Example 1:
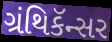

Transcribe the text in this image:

ગ્રંથિકૅન્સર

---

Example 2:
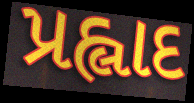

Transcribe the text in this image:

પ્રહ્લાદ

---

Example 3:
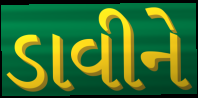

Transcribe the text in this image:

ડાવીને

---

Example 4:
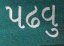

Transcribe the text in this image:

પઢવુ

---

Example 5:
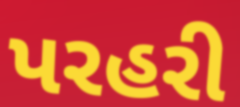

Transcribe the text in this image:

પરહરી